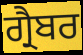
ਗ੍ਰੈਬਰ